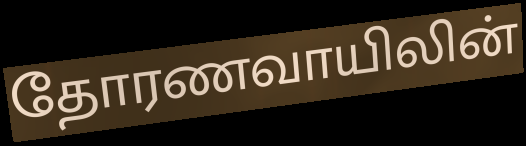
தோரணவாயிலின்